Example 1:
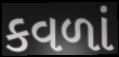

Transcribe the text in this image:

કવળાં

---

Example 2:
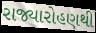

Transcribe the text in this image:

રાજ્યારોહણથી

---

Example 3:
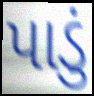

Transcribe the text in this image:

પાડું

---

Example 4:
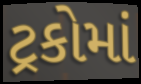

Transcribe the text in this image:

ટ્રકોમાં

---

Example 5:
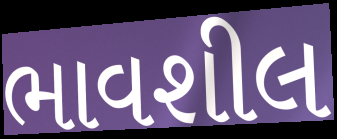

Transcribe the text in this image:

ભાવશીલ